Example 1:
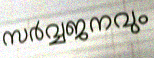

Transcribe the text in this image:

സർവ്വജനവും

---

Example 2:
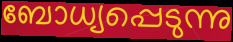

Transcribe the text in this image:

ബോധ്യപ്പെടുന്നു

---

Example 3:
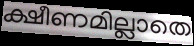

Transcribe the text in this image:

ക്ഷീണമില്ലാതെ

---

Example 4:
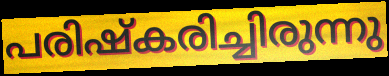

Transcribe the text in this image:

പരിഷ്കരിച്ചിരുന്നു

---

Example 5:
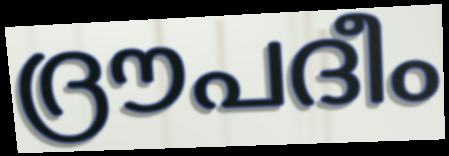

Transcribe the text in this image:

ദ്രൗപദീം